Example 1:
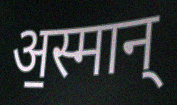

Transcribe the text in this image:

अ॒स्मान्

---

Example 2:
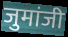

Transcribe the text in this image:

जुमांजी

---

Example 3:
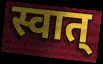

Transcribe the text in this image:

स्वात्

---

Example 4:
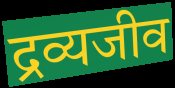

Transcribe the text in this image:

द्रव्यजीव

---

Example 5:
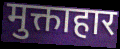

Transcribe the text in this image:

मुक्ताहार